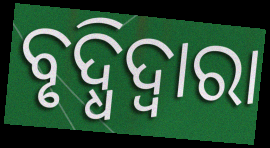
ବୃଦ୍ଧିଦ୍ୱାରା